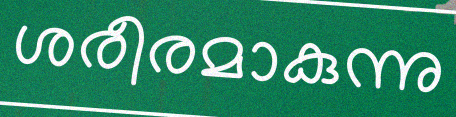
ശരീരമാകുന്നു